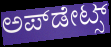
ಅಪ್‌ಡೇಟ್ಸ್